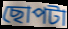
ছোপটা